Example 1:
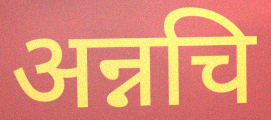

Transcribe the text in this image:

अन्नचि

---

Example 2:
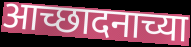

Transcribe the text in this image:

आच्छादनाच्या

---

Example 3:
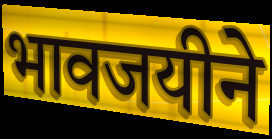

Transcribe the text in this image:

भावजयीने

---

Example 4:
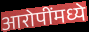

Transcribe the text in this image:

आरोपींमध्ये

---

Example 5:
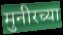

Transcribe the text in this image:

मुनीरच्या